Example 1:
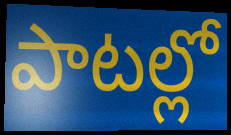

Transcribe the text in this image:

పాటల్లో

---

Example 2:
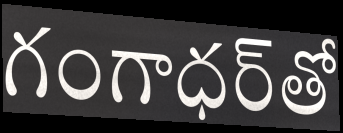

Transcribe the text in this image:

గంగాధర్‌తో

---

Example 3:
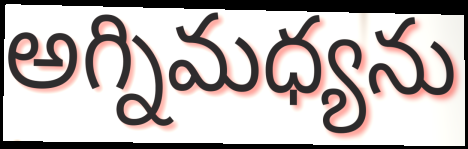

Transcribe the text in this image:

అగ్నిమధ్యను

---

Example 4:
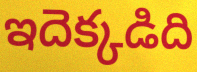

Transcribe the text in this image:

ఇదెక్కడిది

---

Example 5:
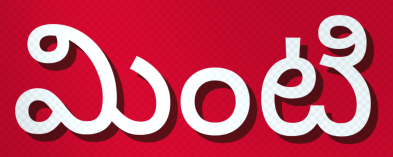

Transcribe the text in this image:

మింటి